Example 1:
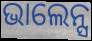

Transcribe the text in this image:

ଭାଲେନ୍ସ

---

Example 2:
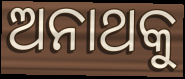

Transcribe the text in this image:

ଅନାଥକୁ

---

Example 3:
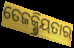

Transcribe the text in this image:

ତେଜକ୍ଶ୍ରିୟତାର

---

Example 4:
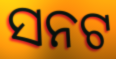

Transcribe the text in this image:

ସନଟ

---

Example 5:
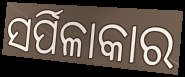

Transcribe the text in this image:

ସର୍ପିଳାକାର